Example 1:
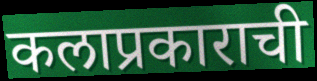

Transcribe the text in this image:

कलाप्रकाराची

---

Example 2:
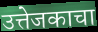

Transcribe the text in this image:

उत्तेजकाचा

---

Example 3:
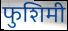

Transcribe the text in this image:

फुशिमी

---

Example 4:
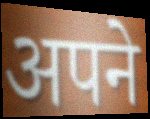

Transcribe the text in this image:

अपने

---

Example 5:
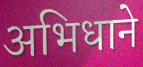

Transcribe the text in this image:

अभिधाने